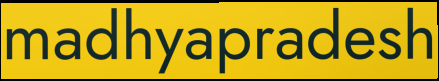
madhyapradesh